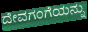
ದೇವಗಂಗೆಯನ್ನು